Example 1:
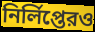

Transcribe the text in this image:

নির্লিপ্তেরও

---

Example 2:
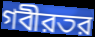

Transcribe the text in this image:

গবীরতর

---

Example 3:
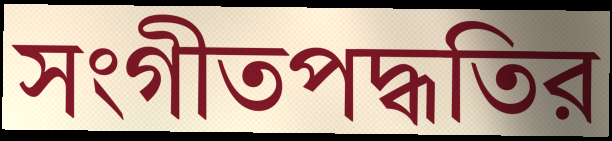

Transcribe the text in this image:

সংগীতপদ্ধতির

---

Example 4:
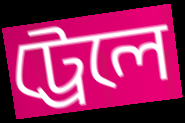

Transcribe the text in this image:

ট্রেলে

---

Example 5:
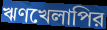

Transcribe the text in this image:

ঋণখেলাপির